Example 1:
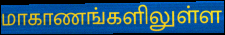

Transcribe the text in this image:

மாகாணங்களிலுள்ள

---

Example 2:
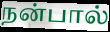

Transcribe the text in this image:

நன்பால்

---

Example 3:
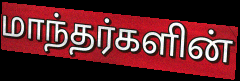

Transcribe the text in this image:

மாந்தர்களின்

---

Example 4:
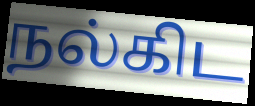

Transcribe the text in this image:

நல்கிட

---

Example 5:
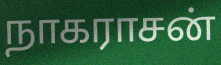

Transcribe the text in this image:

நாகராசன்